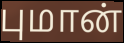
புமான்